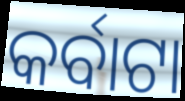
କର୍ବାଟା